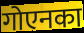
गोएनका